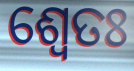
ଶ୍ଵେତଃ